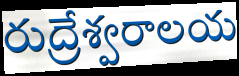
రుద్రేశ్వరాలయ